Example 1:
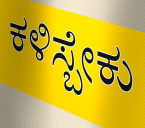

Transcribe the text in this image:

ಕಳಿಸ್ಬೇಕು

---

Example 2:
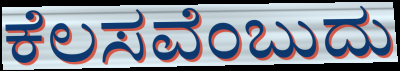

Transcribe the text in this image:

ಕೆಲಸವೆಂಬುದು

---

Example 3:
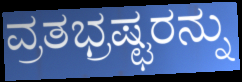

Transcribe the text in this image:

ವ್ರತಭ್ರಷ್ಟರನ್ನು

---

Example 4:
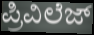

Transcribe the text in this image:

ಪ್ರಿವಿಲೆಜ್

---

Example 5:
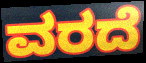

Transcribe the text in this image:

ವರದೆ